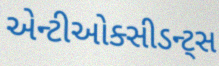
એન્ટીઓક્સીડન્ટ્સ